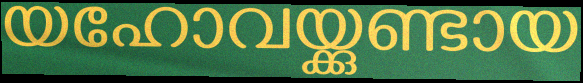
യഹോവയ്ക്കുണ്ടായ